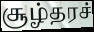
சூழ்தரச்